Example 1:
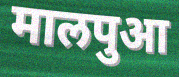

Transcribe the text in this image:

मालपुआ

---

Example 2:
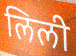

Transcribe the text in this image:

लिली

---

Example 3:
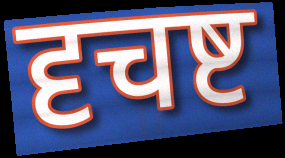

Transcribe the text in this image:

दृचष्ट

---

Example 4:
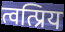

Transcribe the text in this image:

त्वत्प्रिय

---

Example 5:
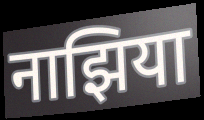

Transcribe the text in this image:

नाझिया